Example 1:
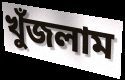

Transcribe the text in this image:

খুঁজলাম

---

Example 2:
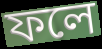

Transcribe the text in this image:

ফলে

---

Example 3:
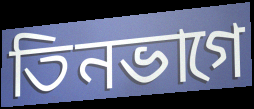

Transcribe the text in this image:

তিনভাগে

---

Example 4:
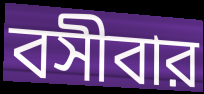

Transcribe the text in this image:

বসীবার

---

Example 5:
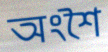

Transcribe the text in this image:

অংশৈ